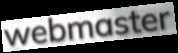
webmaster